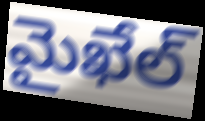
మైఖేల్